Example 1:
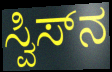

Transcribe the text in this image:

ಸ್ವಿಸ್‌ನ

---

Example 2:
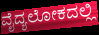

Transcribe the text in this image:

ವೈದ್ಯಲೋಕದಲ್ಲಿ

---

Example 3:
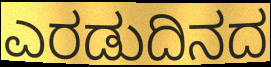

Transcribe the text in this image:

ಎರಡುದಿನದ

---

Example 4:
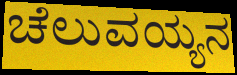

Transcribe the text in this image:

ಚೆಲುವಯ್ಯನ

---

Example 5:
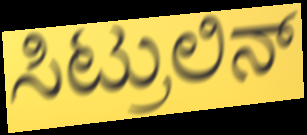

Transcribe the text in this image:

ಸಿಟ್ರುಲಿನ್